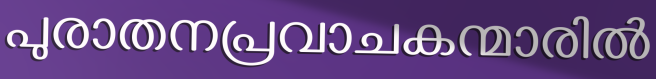
പുരാതനപ്രവാചകന്മാരിൽ